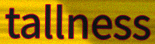
tallness